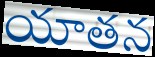
యాతన